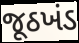
જૂઠખંડ